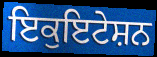
ਇਕੁਇਟੇਸ਼ਨ